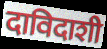
दाविदाशी